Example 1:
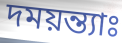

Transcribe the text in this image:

দময়ন্ত্যাঃ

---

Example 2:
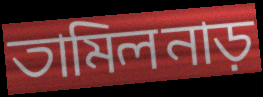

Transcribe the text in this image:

তামিলনাড়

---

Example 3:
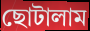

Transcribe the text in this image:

ছোটালাম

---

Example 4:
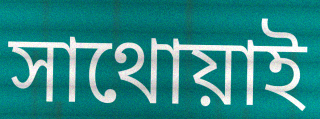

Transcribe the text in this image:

সাথোয়াই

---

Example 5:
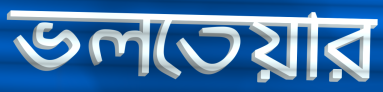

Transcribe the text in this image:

ভলতেয়ার